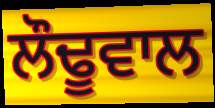
ਲੌਢੂਵਾਲ